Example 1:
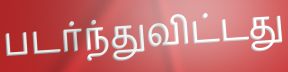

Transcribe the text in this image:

படர்ந்துவிட்டது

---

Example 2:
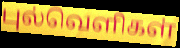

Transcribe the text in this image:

புல்வெளிகள்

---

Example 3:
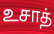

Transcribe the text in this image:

உசாத்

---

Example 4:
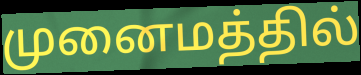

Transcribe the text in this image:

முனைமத்தில்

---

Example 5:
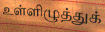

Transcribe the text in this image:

உள்ளிழுத்துக்